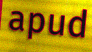
apud